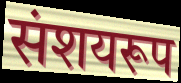
संशयरूप